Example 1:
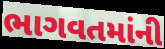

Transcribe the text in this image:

ભાગવતમાંની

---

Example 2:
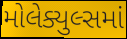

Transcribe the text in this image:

મોલેક્યુલ્સમાં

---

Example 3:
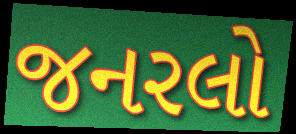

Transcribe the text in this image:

જનરલો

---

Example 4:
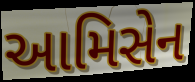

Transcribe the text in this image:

આમિસેન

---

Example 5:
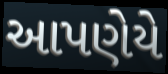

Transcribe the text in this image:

આપણેયે